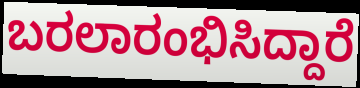
ಬರಲಾರಂಭಿಸಿದ್ದಾರೆ